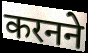
करनने